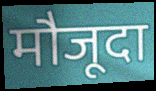
मौजूदा